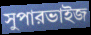
সুপারভাইজ